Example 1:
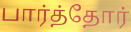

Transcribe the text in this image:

பார்த்தோர்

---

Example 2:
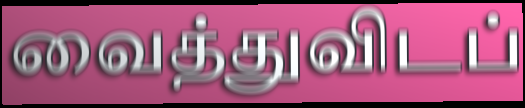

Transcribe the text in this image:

வைத்துவிடப்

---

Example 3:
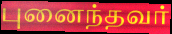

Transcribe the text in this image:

புனைந்தவர்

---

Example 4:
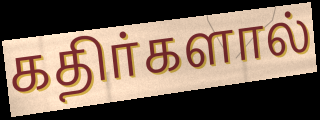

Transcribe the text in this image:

கதிர்களால்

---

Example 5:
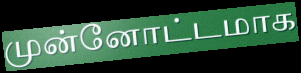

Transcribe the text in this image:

முன்னோட்டமாக